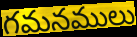
గమనములు